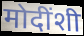
मोदींशी